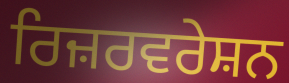
ਰਿਜ਼ਰਵਰੇਸ਼ਨ